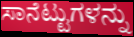
ಸಾನೆಟ್ಟುಗಳನ್ನು